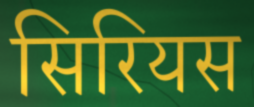
सिरियस